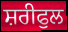
ਸ਼ਰੀਫੁਲ